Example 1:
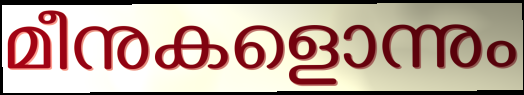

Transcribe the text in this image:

മീനുകളൊന്നും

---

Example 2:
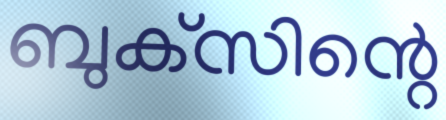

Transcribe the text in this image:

ബുക്‌സിന്റെ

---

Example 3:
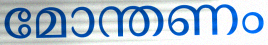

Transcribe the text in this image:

മോന്തണം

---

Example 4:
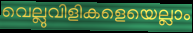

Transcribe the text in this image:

വെല്ലുവിളികളെയെല്ലാം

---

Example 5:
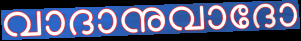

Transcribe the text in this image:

വാദാനുവാദോ